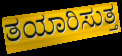
ತಯಾರಿಸುತ್ತ